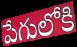
పేగులోకి